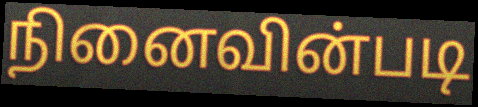
நினைவின்படி